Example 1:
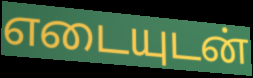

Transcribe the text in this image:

எடையுடன்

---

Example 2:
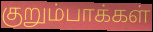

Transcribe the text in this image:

குறும்பாக்கள்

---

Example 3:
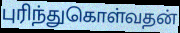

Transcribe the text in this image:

புரிந்துகொள்வதன்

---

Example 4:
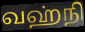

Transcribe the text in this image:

வஹ்நி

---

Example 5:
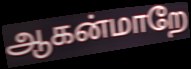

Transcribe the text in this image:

ஆகன்மாறே